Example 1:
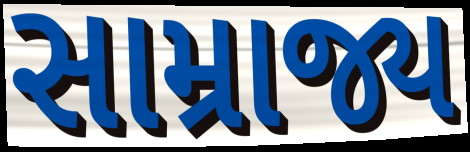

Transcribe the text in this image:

સામ્રાજ્ય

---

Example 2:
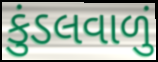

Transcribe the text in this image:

કુંડલવાળું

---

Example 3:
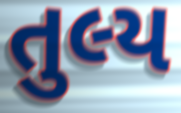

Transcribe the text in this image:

તુલ્ય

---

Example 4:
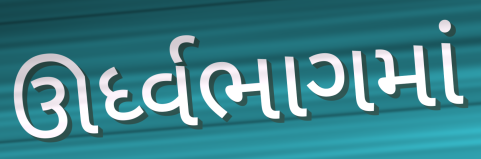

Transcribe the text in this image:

ઊર્ધ્વભાગમાં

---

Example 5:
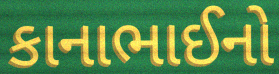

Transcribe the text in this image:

કાનાભાઈનો